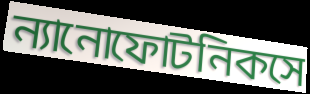
ন্যানোফোটনিকসে